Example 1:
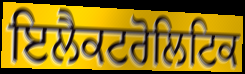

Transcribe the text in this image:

ਇਲੈਕਟਰੋਲਿਟਿਕ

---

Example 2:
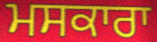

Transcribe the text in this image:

ਮਸਕਾਰਾ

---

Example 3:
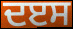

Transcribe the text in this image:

ਦੲਸ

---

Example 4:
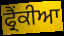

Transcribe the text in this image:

ਫ੍ਰੈਂਕੀਆ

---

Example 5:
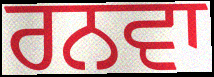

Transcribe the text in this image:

ਰਨਵਾ